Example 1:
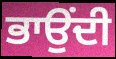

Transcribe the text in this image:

ਭਾਉਂਦੀ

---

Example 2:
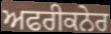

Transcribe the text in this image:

ਅਫਰੀਕਨੇਰ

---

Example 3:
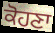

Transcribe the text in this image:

ਕੋਹਣਾ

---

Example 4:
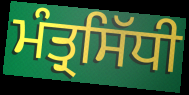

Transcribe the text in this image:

ਮੰਤ੍ਰਸਿੱਧੀ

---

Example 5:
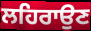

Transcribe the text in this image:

ਲਹਿਰਾਉਣ